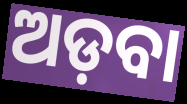
ଅଡ଼ବା